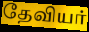
தேவியர்